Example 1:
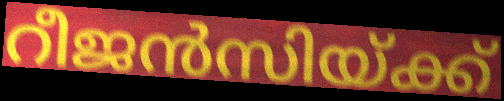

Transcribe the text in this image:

റീജൻസിയ്ക്ക്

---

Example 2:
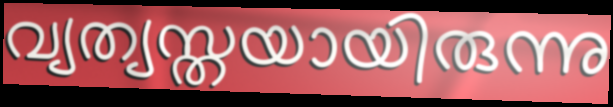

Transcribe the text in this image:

വ്യത്യസ്തയായിരുന്നു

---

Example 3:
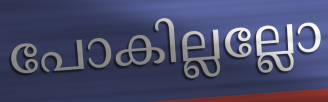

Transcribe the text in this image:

പോകില്ലല്ലോ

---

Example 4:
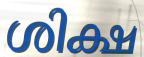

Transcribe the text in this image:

ശിക്ഷ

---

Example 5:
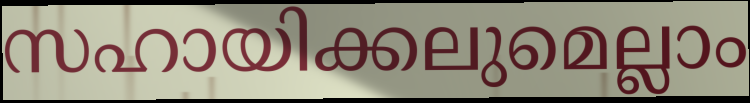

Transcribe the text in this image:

സഹായിക്കലുമെല്ലാം